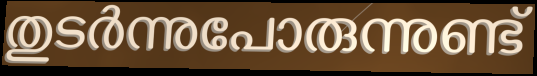
തുടർന്നുപോരുന്നുണ്ട്